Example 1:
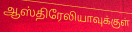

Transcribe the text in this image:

ஆஸ்திரேலியாவுக்குள்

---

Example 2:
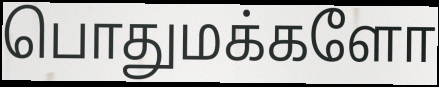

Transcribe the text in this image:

பொதுமக்களோ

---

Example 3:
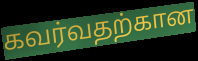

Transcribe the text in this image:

கவர்வதற்கான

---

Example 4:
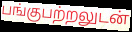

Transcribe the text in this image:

பங்குபற்றலுடன்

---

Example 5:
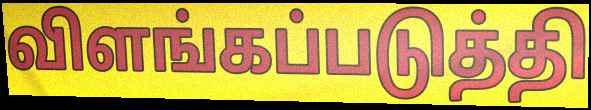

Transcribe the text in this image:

விளங்கப்படுத்தி